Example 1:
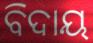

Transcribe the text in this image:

ବିଦାୟ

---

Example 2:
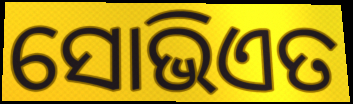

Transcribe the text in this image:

ସୋଭିଏତ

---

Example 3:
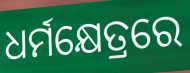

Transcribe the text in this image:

ଧର୍ମକ୍ଷେତ୍ରରେ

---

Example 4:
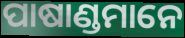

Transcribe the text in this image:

ପାଷାଣ୍ଡମାନେ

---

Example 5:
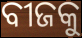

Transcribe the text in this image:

ବୀଜକୁ